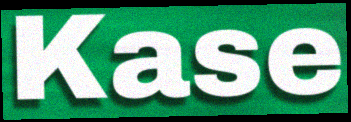
Kase